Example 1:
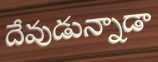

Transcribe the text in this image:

దేవుడున్నాడా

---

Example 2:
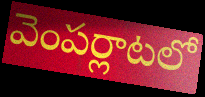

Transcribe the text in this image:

వెంపర్లాటలో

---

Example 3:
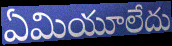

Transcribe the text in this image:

ఏమియూలేదు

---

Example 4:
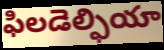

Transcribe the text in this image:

ఫిలడెల్ఫియా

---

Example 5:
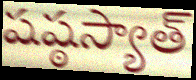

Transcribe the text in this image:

షష్ఠస్యాత్